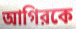
আগিরকে